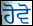
ਹੋਵੋ